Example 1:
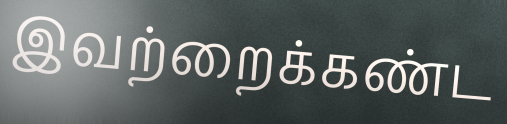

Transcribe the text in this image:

இவற்றைக்கண்ட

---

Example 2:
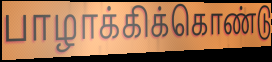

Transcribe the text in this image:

பாழாக்கிக்கொண்டு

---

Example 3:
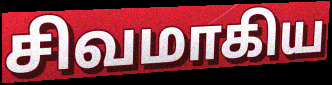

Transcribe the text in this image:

சிவமாகிய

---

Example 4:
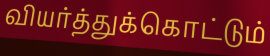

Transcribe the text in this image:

வியர்த்துக்கொட்டும்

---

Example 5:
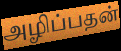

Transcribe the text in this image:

அழிப்பதன்